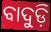
ବାଦୁଡ଼ି